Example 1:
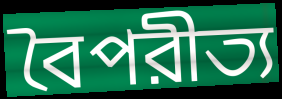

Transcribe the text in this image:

বৈপরীত্য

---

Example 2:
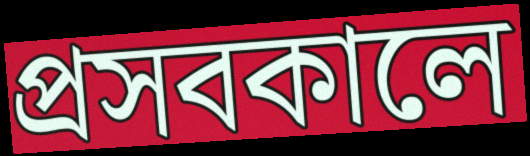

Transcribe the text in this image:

প্রসবকালে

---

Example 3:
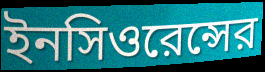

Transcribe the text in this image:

ইনসিওরেন্সের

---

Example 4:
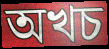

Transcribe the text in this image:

অখচ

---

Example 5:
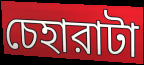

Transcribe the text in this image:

চেহারাটা